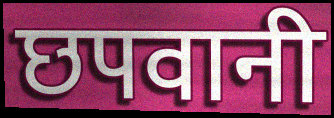
छपवानी